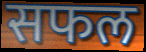
सफल